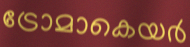
ട്രോമാകെയർ